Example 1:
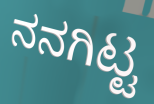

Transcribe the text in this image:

ನನಗಿಟ್ಟ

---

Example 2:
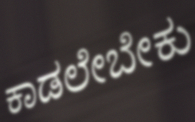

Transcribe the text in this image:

ಕಾಡಲೇಬೇಕು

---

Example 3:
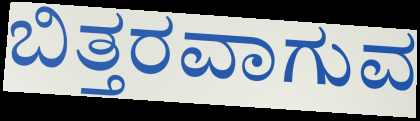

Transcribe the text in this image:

ಬಿತ್ತರವಾಗುವ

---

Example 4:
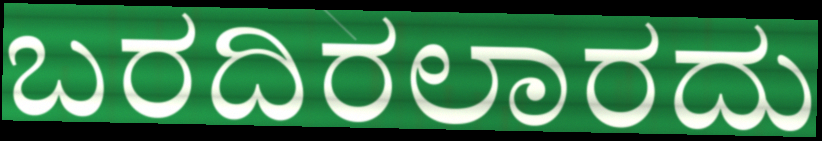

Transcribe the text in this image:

ಬರದಿರಲಾರದು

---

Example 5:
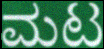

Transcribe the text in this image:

ಮಟ